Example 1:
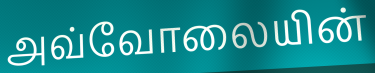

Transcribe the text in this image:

அவ்வோலையின்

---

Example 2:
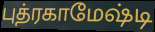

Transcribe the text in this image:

புத்ரகாமேஷ்டி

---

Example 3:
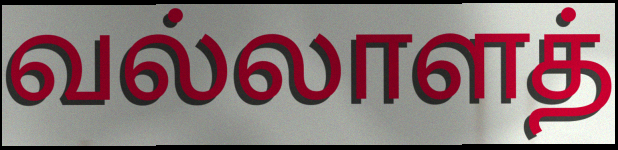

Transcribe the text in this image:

வல்லாளத்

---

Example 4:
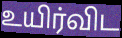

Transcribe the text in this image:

உயிர்விட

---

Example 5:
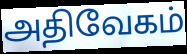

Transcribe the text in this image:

அதிவேகம்